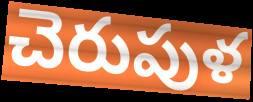
చెరుపుళ